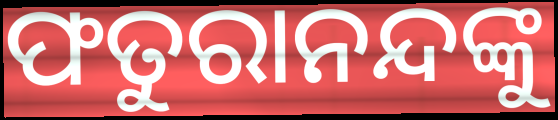
ଫତୁରାନନ୍ଦଙ୍କୁ